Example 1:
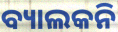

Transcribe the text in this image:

ବ୍ୟାଲକନି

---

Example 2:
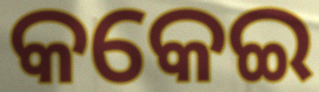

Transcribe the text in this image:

କକେଇ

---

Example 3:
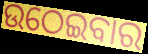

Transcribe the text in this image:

ଉଠେଇବାର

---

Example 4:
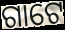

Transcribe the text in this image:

ଗାଟେ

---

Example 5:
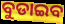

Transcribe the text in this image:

ବୁଡାଇବ